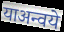
याअन्वये